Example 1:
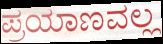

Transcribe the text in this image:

ಪ್ರಯಾಣವಲ್ಲ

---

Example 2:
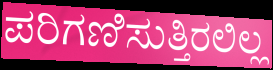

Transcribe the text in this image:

ಪರಿಗಣಿಸುತ್ತಿರಲಿಲ್ಲ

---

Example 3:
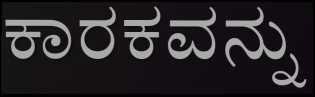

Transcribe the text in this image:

ಕಾರಕವನ್ನು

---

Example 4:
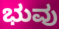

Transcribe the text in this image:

ಭುವು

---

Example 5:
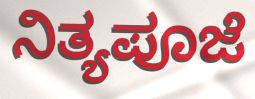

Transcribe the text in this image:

ನಿತ್ಯಪೂಜೆ